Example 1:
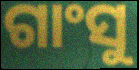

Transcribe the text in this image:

ଗାଂସୁ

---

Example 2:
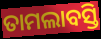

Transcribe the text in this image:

ତାମଲାବସ୍ତି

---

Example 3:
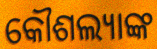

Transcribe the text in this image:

କୌଶଲ୍ୟାଙ୍କ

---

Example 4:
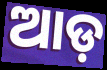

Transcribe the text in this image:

ଆଡ଼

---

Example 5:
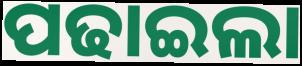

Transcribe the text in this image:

ପଢାଇଲା